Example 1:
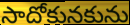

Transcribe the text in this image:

సాదోకునకును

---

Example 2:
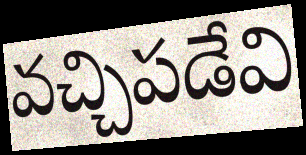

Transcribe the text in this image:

వచ్చిపడేవి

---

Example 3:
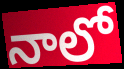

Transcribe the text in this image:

నాలో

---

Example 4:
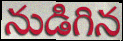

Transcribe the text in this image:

నుడిగిన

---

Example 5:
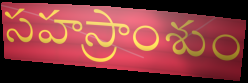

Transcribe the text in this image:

సహస్రాంశుం